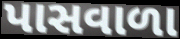
પાસવાળા